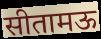
सीतामऊ